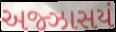
અજ્ઝાસયં